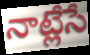
నాట్లేసే